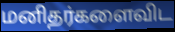
மனிதர்களைவிட